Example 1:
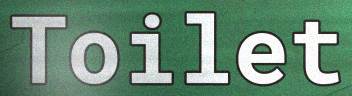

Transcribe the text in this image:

Toilet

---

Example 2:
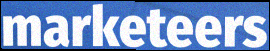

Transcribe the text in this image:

marketeers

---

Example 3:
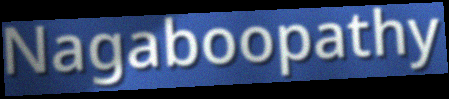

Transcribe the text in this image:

Nagaboopathy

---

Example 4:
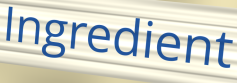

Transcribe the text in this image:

Ingredient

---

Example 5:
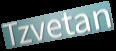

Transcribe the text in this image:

Tzvetan